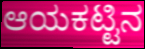
ಆಯಕಟ್ಟಿನ